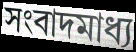
সংবাদমাধ্য